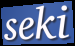
seki